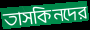
তাসকিনদের